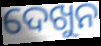
ଦେଖୁନ